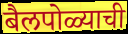
बैलपोळ्याची